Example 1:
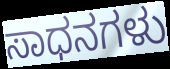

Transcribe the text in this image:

ಸಾಧನಗಳು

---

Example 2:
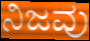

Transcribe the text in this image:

ನಿಜವು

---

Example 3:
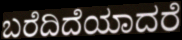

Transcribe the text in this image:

ಬರೆದಿದೆಯಾದರೆ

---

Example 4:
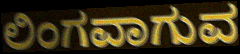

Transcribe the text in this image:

ಲಿಂಗವಾಗುವ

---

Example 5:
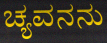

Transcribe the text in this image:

ಚ್ಯವನನು